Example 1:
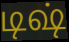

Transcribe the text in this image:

டிஷ்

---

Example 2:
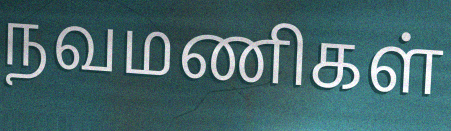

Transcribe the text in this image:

நவமணிகள்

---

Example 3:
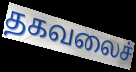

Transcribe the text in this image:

தகவலைச்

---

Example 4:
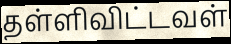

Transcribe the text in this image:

தள்ளிவிட்டவள்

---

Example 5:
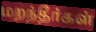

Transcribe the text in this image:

மறந்தீர்கள்